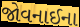
જોવનાઈના